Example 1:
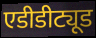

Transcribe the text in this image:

एडीडीट्यूड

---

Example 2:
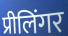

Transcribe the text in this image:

प्रीलिंगर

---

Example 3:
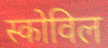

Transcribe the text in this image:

स्कोविल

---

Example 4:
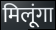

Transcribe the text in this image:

मिलूंगा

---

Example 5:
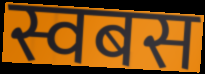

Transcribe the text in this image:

स्वबस